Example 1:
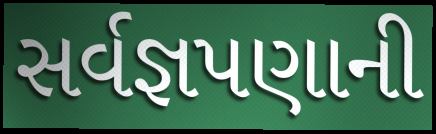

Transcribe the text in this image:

સર્વજ્ઞપણાની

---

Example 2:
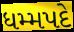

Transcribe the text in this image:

ધમ્મપદે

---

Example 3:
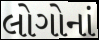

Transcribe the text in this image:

લોગોનાં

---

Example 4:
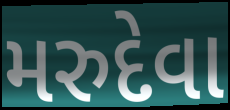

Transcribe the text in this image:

મરુદેવા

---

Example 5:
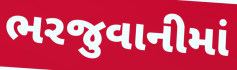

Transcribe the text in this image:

ભરજુવાનીમાં